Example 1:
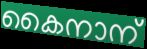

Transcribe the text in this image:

കൈനാന്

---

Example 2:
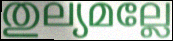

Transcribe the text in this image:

തുല്യമല്ലേ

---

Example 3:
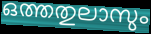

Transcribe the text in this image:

ഒത്തതുലാസും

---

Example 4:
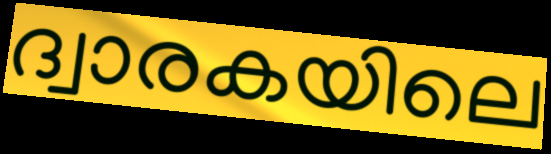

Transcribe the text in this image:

ദ്വാരകയിലെ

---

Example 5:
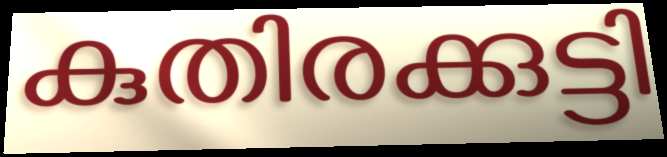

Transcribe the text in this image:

കുതിരക്കുട്ടി